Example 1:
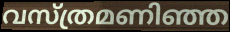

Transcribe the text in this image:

വസ്ത്രമണിഞ്ഞ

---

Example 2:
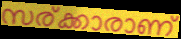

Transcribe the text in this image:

സര്ക്കാരാണ്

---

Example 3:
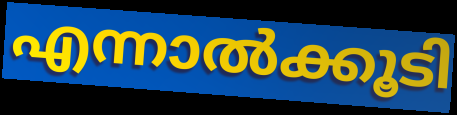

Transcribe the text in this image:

എന്നാൽക്കൂടി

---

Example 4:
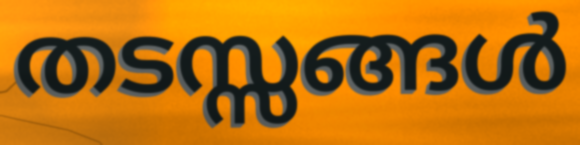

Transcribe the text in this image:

തടസ്സങ്ങൾ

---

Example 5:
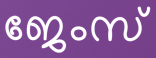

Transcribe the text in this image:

ജേംസ്